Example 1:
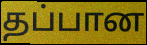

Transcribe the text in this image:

தப்பான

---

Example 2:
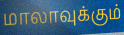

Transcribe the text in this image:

மாலாவுக்கும்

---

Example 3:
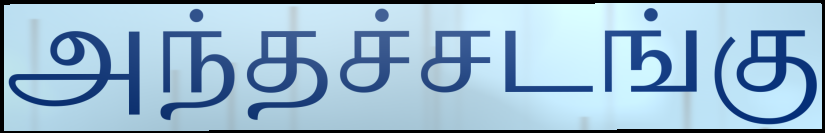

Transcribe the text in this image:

அந்தச்சடங்கு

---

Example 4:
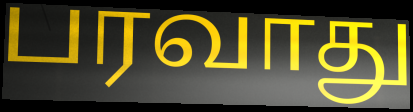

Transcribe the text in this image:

பரவாது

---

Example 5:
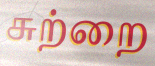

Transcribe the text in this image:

சுற்றை